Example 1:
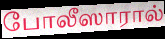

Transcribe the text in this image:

போலீஸாரால்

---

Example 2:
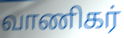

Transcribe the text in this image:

வாணிகர்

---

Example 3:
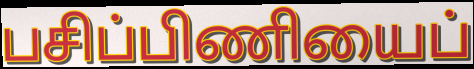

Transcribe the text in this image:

பசிப்பிணியைப்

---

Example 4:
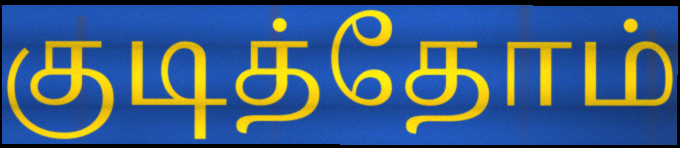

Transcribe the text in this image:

குடித்தோம்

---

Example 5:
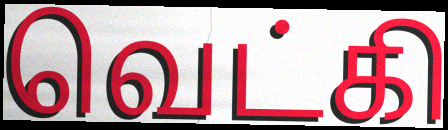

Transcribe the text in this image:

வெட்கி